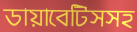
ডায়াবেটিসসহ